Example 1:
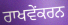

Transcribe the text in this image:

ਰਾਖਵੇਂਕਰਨ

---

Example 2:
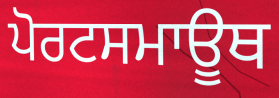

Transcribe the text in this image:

ਪੋਰਟਸਮਾਊਥ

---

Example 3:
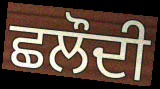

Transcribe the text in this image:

ਛਲੌਦੀ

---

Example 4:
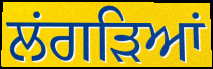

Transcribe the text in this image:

ਲਂਗੜਿਆਂ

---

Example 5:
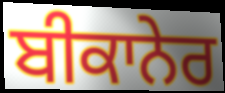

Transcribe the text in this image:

ਬੀਕਾਨੇਰ